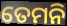
ତେମନି